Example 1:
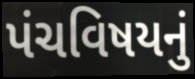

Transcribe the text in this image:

પંચવિષયનું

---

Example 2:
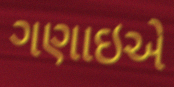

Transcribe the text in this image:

ગણાઇએ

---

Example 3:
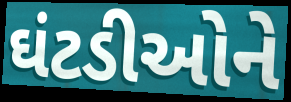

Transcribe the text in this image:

ઘંટડીઓને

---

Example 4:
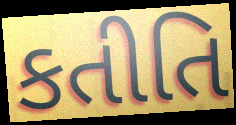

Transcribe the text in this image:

કતીતિ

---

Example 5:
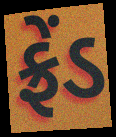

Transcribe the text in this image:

ફ્રેંડ